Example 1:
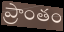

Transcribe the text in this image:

ప్రాంతం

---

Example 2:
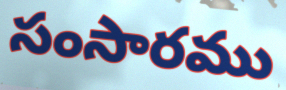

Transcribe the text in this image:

సంసారము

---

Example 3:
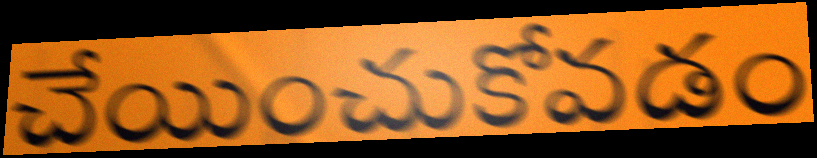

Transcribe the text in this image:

చేయించుకోవడం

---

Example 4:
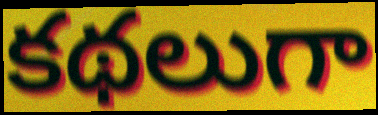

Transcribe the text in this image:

కథలుగా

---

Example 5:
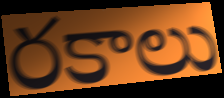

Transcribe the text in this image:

రకాలు